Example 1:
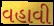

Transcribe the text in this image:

વહાવી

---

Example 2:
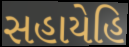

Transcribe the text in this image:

સહાયેહિ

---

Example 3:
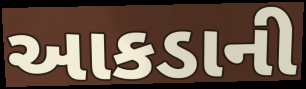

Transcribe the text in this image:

આકડાની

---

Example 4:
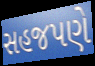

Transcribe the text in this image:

સહજપણે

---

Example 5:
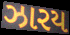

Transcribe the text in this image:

ઝારય